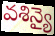
వశిన్యై